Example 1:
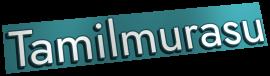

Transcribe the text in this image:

Tamilmurasu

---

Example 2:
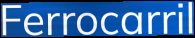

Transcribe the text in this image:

Ferrocarril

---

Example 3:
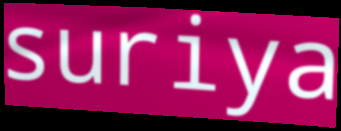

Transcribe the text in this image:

suriya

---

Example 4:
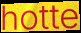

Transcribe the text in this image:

hotte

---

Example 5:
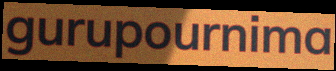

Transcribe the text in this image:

gurupournima